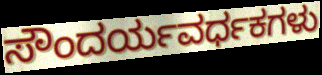
ಸೌಂದರ್ಯವರ್ಧಕಗಳು